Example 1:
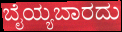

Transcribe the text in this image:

ಬೈಯ್ಯಬಾರದು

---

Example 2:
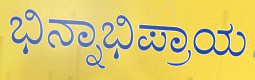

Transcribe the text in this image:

ಭಿನ್ನಾಭಿಪ್ರಾಯ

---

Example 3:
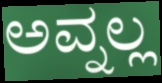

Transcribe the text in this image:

ಅವ್ನಲ್ಲ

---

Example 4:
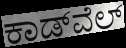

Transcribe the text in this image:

ಕಾಡ್‌ವೆಲ್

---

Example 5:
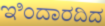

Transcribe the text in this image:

ಇಿಂದಾರದಿದ